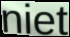
niet